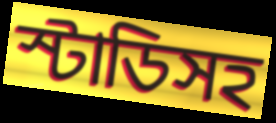
স্টাডিসহ